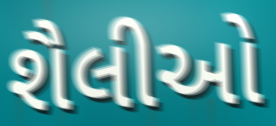
શૈલીઓ